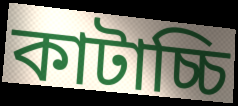
কাটাচ্চি